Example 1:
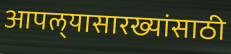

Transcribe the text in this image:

आपल्यासारख्यांसाठी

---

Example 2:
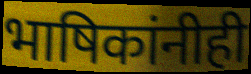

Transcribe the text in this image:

भाषिकांनीही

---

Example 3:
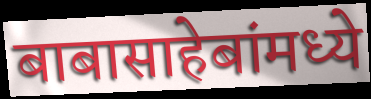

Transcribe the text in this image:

बाबासाहेबांमध्ये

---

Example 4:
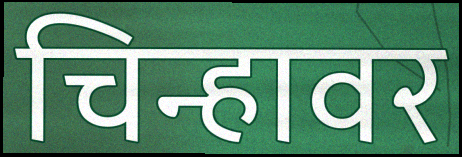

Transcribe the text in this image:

चिन्हावर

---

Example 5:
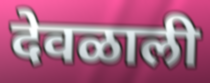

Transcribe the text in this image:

देवळाली